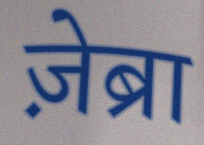
ज़ेब्रा